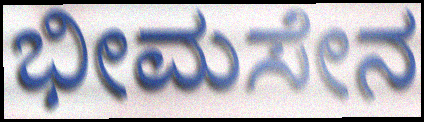
ಭೀಮಸೇನ